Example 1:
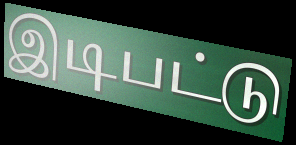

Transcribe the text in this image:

இடிபட்டு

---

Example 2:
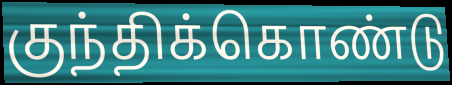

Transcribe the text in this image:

குந்திக்கொண்டு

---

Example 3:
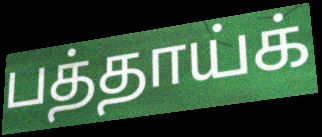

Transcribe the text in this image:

பத்தாய்க்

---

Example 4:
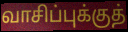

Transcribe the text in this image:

வாசிப்புக்குத்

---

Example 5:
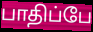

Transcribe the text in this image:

பாதிப்பே